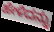
ಹೇಳಿದನ್ನು